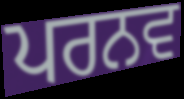
ਪਰਨਵ